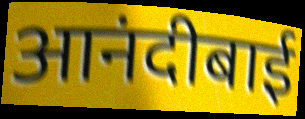
आनंदीबाई